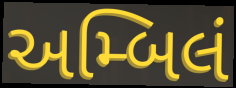
અમ્બિલં